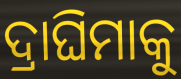
ଦ୍ରାଘିମାକୁ